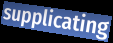
supplicating